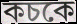
কচকে